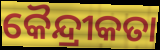
କୈନ୍ଦ୍ରୀକତା